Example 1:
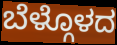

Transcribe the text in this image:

ಬೆಳ್ಗೊಳದ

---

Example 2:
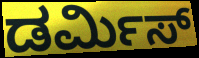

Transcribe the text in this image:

ಡರ್ಮಿಸ್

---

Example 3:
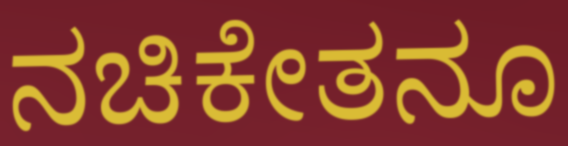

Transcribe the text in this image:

ನಚಿಕೇತನೂ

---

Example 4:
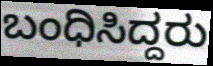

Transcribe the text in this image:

ಬಂಧಿಸಿದ್ದರು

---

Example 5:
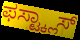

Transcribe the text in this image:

ಫಸ್ಟ್ಕ್ಲಾಸ್